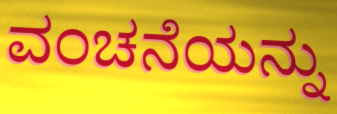
ವಂಚನೆಯನ್ನು